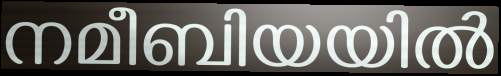
നമീബിയയിൽ